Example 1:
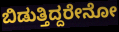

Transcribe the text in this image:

ಬಿಡುತ್ತಿದ್ದರೇನೋ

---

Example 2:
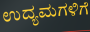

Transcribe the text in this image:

ಉದ್ಯಮಗಳಿಗೆ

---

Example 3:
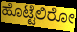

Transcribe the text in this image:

ಹೊಟ್ಟೆಲಿರೋ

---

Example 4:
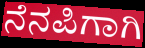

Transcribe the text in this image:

ನೆನಪಿಗಾಗಿ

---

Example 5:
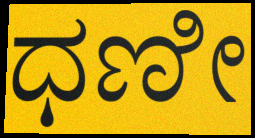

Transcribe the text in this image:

ಧಣೀ